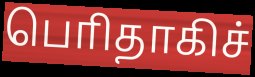
பெரிதாகிச்